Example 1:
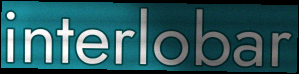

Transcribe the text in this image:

interlobar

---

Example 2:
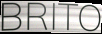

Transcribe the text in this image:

BRITO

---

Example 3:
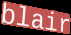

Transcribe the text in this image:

blair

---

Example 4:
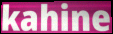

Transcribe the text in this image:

kahine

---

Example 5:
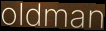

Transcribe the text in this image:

oldman